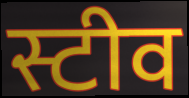
स्टीव